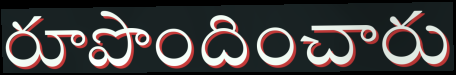
రూపొందించారు